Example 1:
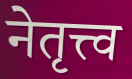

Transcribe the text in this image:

नेतृत्त्व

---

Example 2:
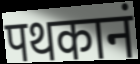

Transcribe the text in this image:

पथकानं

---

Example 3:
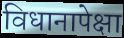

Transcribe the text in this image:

विधानापेक्षा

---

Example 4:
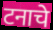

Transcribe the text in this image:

टनाचे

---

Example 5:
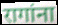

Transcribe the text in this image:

रागांना